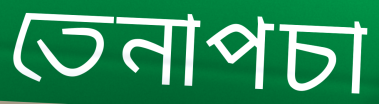
তেনাপচা